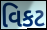
વિકટ